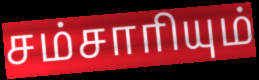
சம்சாரியும்